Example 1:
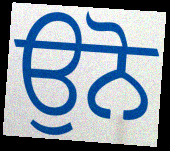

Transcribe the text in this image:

ਉਨੋ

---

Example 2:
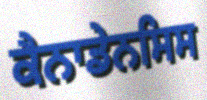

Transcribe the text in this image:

ਕੈਨਾਡੇਨਸਿਸ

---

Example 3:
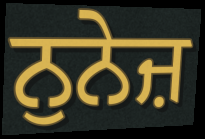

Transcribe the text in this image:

ਨੁਨੇਜ਼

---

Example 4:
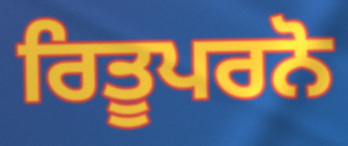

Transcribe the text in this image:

ਰਿਤੂਪਰਨੋ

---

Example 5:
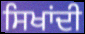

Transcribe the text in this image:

ਸਿਖਾਂਦੀ